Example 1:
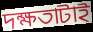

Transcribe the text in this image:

দক্ষতাটাই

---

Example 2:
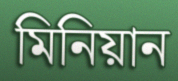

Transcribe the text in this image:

মিনিয়ান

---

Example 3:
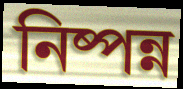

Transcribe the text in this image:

নিষ্পন্ন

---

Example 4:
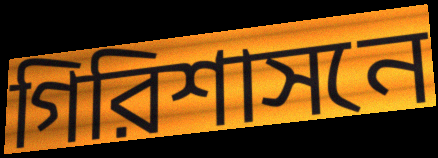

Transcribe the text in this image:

গিরিশাসনে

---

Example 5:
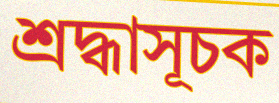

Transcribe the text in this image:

শ্রদ্ধাসূচক